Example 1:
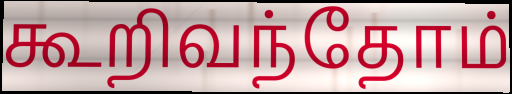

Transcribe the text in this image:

கூறிவந்தோம்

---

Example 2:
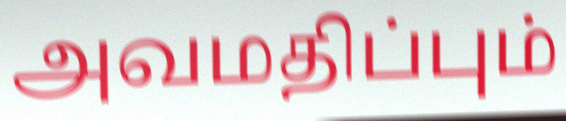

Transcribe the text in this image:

அவமதிப்பும்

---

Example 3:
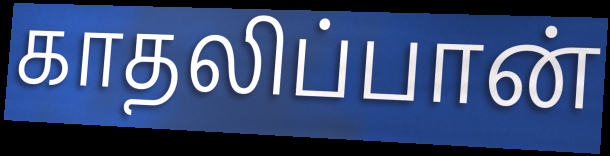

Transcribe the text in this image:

காதலிப்பான்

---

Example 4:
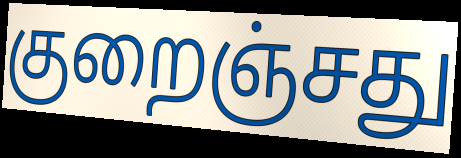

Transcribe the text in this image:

குறைஞ்சது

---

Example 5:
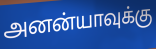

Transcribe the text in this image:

அனன்யாவுக்கு